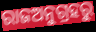
ରାଜଅନୁଗ୍ରହରୁ